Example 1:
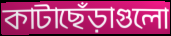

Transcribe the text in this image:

কাটাছেঁড়াগুলো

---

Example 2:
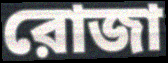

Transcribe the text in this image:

রোজা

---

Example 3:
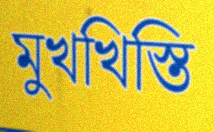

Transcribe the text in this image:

মুখখিস্তি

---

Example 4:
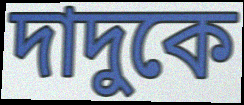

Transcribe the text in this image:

দাদুকে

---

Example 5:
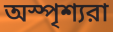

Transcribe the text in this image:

অস্পৃশ্যরা